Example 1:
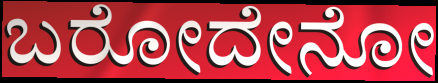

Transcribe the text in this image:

ಬರೋದೇನೋ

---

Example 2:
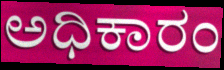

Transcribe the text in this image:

ಅಧಿಕಾರಂ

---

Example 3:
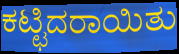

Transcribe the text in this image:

ಕಟ್ಟಿದರಾಯಿತು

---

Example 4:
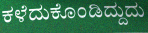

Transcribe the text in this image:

ಕಳೆದುಕೊಂಡಿದ್ದುದು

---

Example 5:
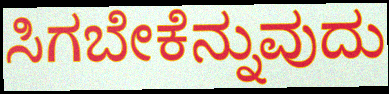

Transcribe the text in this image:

ಸಿಗಬೇಕೆನ್ನುವುದು